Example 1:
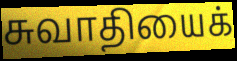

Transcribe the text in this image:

சுவாதியைக்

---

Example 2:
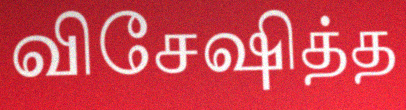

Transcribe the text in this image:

விசேஷித்த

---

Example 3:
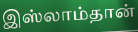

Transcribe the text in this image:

இஸ்லாம்தான்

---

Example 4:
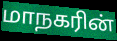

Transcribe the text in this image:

மாநகரின்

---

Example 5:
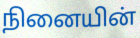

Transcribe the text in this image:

நினையின்